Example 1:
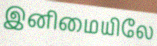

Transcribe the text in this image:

இனிமையிலே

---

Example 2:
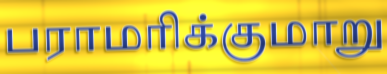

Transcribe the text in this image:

பராமரிக்குமாறு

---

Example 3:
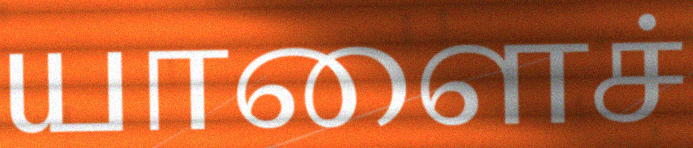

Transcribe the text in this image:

யாளைச்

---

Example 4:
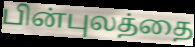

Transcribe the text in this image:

பின்புலத்தை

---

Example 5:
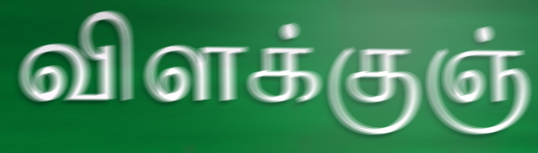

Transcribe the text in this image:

விளக்குஞ்